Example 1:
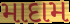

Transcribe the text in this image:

માદામ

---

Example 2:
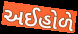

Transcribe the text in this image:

અઈહોળે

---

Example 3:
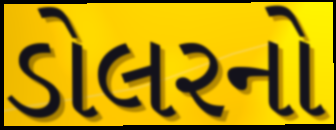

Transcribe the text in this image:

ડોલરનો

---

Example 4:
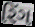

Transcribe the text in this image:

રિંગ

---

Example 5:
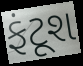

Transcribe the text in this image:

ફંટૂશ